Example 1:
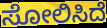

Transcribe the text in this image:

ಸೋಲಿಸಿದೆ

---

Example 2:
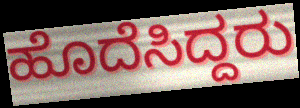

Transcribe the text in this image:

ಹೊದೆಸಿದ್ದರು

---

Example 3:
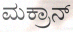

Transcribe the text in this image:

ಮಕ್ರಾನ್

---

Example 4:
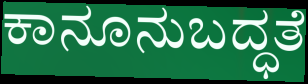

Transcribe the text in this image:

ಕಾನೂನುಬದ್ಧತೆ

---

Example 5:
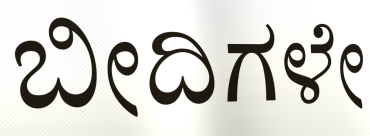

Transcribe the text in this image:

ಬೀದಿಗಳೇ